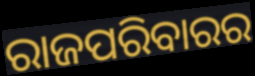
ରାଜପରିବାରର